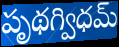
పృథగ్విధమ్